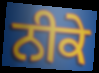
ਨੀਕੇ